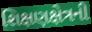
શિક્ષણક્ષેત્રની